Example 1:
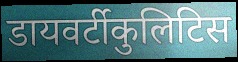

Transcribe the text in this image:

डायवर्टीकुलिटिस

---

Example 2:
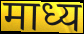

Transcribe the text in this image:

माध्य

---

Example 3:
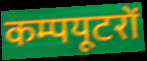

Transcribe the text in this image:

कम्पयूटरों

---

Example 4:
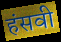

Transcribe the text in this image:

हंसवी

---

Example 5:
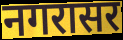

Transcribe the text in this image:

नगरासर